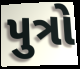
પુત્રો